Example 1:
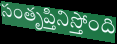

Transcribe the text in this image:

సంతృప్తినిస్తోంది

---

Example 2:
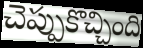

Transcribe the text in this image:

చెప్పుకొచ్చింది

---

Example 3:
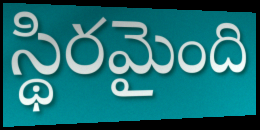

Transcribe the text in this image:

స్థిరమైంది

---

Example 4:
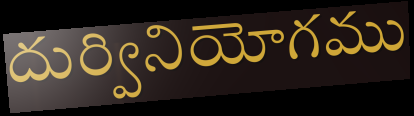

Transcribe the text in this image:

దుర్వినియోగము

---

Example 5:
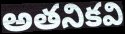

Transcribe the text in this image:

అతనికవి